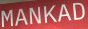
MANKAD